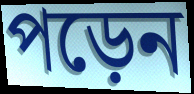
পড়েন